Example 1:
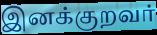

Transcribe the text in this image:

இனக்குறவர்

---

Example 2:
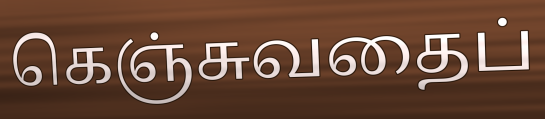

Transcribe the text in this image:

கெஞ்சுவதைப்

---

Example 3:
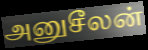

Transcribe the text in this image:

அனுசீலன்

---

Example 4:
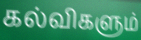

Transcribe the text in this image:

கல்விகளும்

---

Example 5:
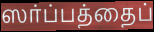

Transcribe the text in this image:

ஸர்ப்பத்தைப்